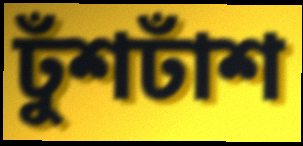
ঢুঁশঢাঁশ